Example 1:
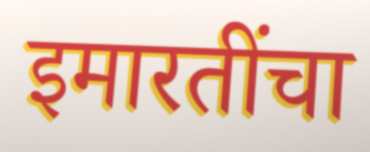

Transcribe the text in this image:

इमारतींचा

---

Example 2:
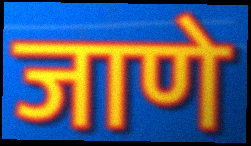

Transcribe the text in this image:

जाणे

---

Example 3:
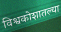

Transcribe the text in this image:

विश्वकोशातल्या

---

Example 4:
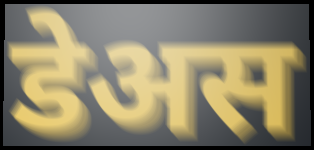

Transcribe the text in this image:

डेअस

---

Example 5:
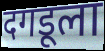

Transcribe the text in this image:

दगडूला